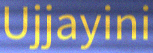
Ujjayini